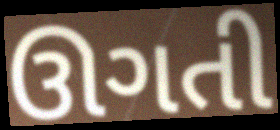
ઊગતી